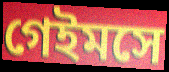
গেইমসে